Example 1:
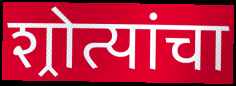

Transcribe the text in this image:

श्रोत्यांचा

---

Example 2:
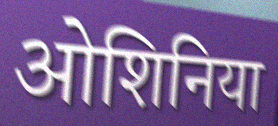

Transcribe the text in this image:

ओशिनिया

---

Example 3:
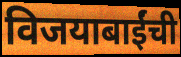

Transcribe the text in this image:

विजयाबाईंची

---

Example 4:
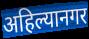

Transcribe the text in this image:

अहिल्यानगर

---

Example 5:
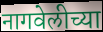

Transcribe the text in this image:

नागवेलीच्या